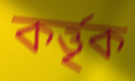
কর্ত্তৃক